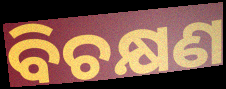
ବିଚକ୍ଷଣ